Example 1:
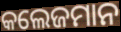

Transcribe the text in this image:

କଲେଜମାନ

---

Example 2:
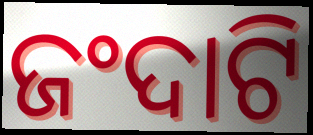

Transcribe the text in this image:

ଜଂଦାଟି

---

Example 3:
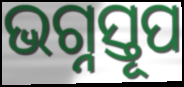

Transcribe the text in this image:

ଭଗ୍ନସ୍ତୂପ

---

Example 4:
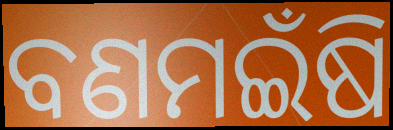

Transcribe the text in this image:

ବଣମଇଁଷି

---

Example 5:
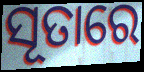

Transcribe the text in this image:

ସୂତାରେ